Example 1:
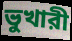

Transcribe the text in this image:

ভুখারী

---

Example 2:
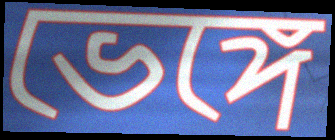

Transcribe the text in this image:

ভেঙ্গে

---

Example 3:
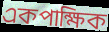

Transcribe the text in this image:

একপাক্ষিক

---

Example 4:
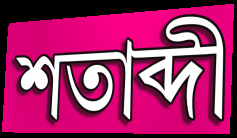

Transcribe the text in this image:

শতাব্দী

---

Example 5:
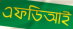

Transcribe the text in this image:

এফডিআই